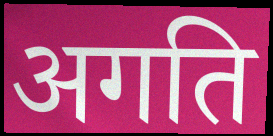
अगति